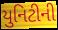
યુનિટીની